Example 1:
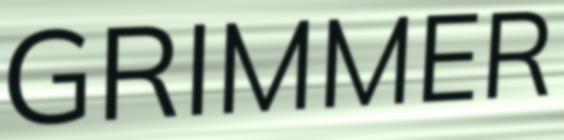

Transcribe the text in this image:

GRIMMER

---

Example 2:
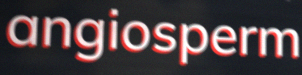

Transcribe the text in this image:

angiosperm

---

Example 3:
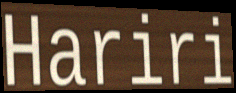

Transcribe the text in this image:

Hariri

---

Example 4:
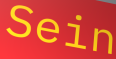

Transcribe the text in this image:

Sein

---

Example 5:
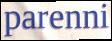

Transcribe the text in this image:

parenni